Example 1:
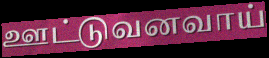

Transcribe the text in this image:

ஊட்டுவனவாய்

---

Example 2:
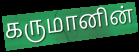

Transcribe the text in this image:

கருமானின்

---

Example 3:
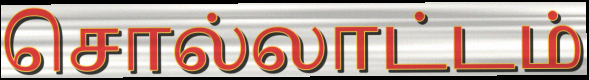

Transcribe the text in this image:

சொல்லாட்டம்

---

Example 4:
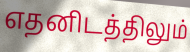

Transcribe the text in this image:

எதனிடத்திலும்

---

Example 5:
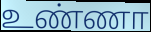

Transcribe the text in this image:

உண்ணா